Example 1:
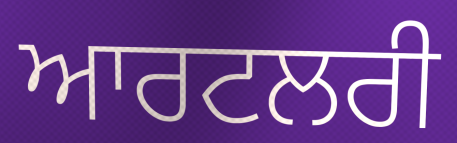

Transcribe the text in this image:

ਆਰਟਲਰੀ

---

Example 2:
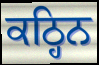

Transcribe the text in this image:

ਕਠ੍ਹਿਨ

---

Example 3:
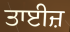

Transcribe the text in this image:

ਤਾਈਜ਼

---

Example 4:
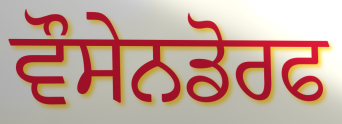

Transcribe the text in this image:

ਵੌਸੇਨਡੋਰਫ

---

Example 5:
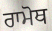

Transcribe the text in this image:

ਰਾਮੋਥ